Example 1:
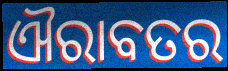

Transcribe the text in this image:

ଐରାବତର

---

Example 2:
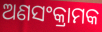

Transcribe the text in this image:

ଅଣସଂକ୍ରାମକ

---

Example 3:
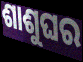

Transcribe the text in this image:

ଶାଶୁଘର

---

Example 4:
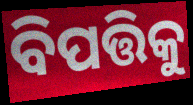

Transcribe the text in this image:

ବିପତ୍ତିକୁ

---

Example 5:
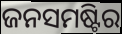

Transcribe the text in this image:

ଜନସମଷ୍ଟିର